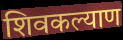
शिवकल्याण